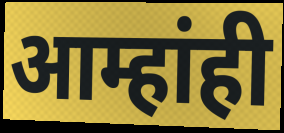
आम्हांही